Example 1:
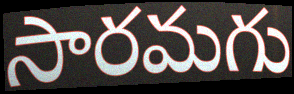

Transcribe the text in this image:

సారమగు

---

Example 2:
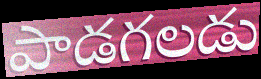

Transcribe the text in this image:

పాడగలడు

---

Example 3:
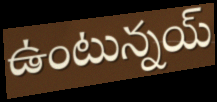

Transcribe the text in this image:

ఉంటున్నయ్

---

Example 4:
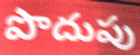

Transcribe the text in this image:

పొదుపు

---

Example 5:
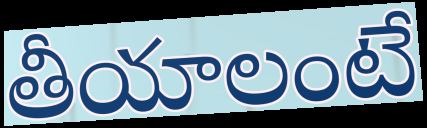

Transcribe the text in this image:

తీయాలంటే